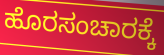
ಹೊರಸಂಚಾರಕ್ಕೆ